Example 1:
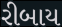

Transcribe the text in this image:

રીબાય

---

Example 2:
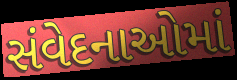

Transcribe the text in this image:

સંવેદનાઓમાં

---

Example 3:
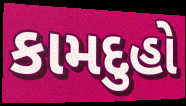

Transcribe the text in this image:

કામદુહો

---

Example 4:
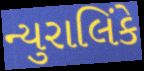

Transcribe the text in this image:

ન્યુરાલિંકે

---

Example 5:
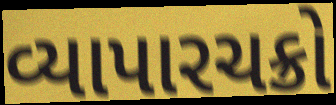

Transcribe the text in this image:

વ્યાપારચક્રો